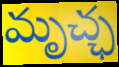
మృచ్ఛ